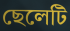
ছেলেটি